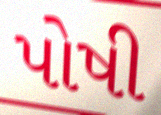
પોષી